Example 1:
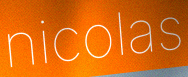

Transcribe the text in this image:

nicolas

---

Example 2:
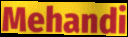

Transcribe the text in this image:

Mehandi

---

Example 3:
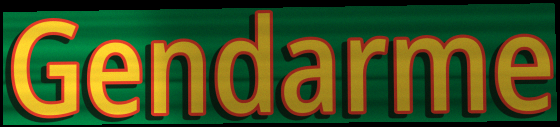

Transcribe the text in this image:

Gendarme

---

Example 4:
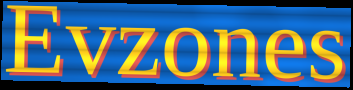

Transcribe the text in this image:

Evzones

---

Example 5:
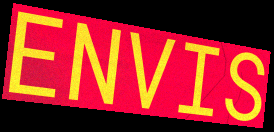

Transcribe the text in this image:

ENVIS